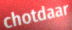
chotdaar